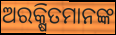
ଅରକ୍ଷିତମାନଙ୍କ